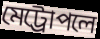
মেট্রোপলে